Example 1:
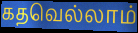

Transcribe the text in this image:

கதவெல்லாம்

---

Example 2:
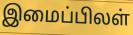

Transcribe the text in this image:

இமைப்பிலள்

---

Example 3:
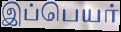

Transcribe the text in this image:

இப்பெயர்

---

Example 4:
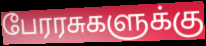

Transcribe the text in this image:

பேரரசுகளுக்கு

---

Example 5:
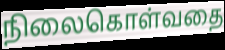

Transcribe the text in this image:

நிலைகொள்வதை